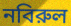
নবিরুল